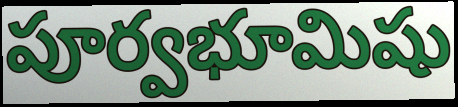
పూర్వభూమిషు